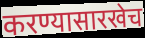
करण्यासारखेच